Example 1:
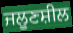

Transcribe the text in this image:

ਜਲੂਣਸ਼ੀਲ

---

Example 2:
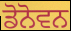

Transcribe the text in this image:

ਡੋਨੋਵਨ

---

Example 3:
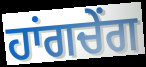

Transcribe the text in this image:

ਹਾਂਗਚੇਂਗ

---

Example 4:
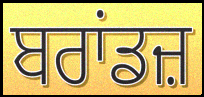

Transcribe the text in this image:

ਬਰਾਂਡਜ਼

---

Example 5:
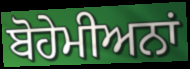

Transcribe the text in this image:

ਬੋਹੇਮੀਅਨਾਂ